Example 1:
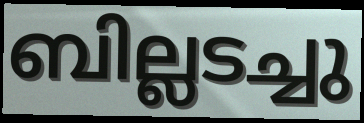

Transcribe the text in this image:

ബില്ലടച്ചു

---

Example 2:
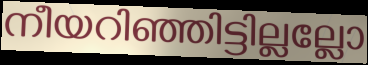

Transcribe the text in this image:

നീയറിഞ്ഞിട്ടില്ലല്ലോ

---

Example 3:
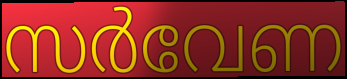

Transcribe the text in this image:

സർവേണ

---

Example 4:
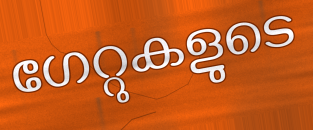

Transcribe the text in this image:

ഗേറ്റുകളുടെ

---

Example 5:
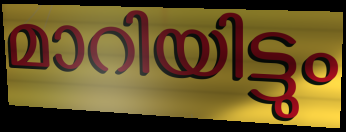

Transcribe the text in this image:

മാറിയിട്ടും